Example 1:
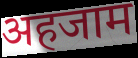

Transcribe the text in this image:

अहजाम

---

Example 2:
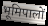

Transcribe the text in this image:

भूमिपालों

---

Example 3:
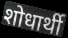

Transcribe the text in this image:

शोधार्थी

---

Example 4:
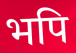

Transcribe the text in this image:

भपि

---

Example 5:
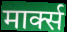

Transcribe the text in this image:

मार्क्‍स